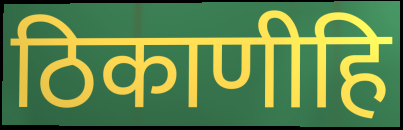
ठिकाणीहि